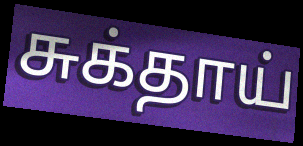
சுக்தாய்